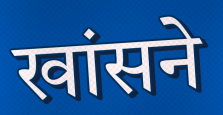
खांसने